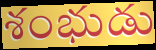
శంభుడు